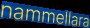
nammellara